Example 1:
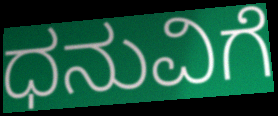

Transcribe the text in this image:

ಧನುವಿಗೆ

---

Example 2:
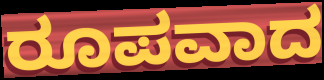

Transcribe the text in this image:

ರೂಪವಾದ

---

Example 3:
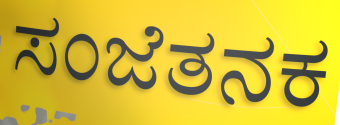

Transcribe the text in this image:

ಸಂಜೆತನಕ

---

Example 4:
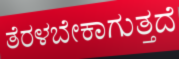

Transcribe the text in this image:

ತೆರಳಬೇಕಾಗುತ್ತದೆ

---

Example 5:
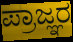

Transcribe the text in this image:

ಪ್ರಾಜ್ಞರ